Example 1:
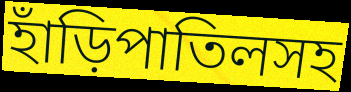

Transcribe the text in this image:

হাঁড়িপাতিলসহ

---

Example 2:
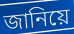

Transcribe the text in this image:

জানিয়ে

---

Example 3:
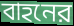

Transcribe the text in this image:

বাহনের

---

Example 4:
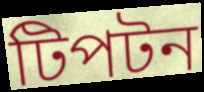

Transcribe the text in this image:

টিপটন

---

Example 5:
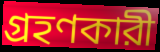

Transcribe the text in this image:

গ্রহণকারী